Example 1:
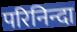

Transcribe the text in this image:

परिनिन्दा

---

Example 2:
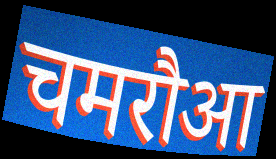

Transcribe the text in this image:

चमरौआ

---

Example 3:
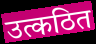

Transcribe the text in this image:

उत्कठित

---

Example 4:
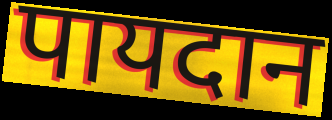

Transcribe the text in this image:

पायदान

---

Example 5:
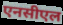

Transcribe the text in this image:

एनसीएल